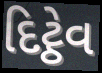
દિટ્ઠેવ